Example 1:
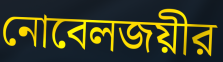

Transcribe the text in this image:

নোবেলজয়ীর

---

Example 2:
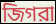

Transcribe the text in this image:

জিগরা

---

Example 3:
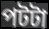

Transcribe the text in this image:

পটটা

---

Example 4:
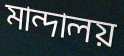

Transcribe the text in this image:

মান্দালয়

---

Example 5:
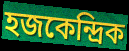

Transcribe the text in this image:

হজকেন্দ্রিক